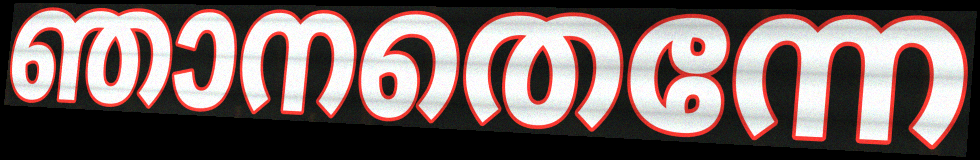
ഞാനതെന്നേ